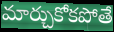
మార్చుకోకపోతే